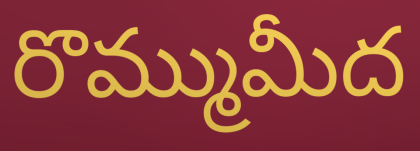
రొమ్ముమీద